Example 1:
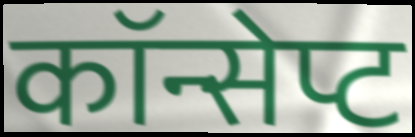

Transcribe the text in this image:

कॉन्‍सेप्‍ट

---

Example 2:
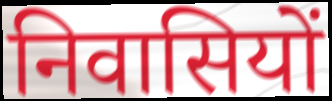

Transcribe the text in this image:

निवासियों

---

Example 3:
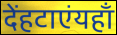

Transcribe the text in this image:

देंहटाएंयहाँ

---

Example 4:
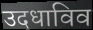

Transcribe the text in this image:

उदधाविव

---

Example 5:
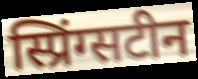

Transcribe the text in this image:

स्प्रिंग्सटीन